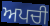
ਅਪਚੀ